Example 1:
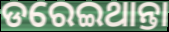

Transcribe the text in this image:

ଡରେଇଥାନ୍ତା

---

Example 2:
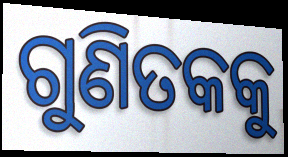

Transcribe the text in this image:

ଗୁଣିତକକୁ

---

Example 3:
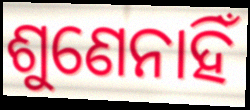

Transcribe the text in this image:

ଶୁଣେନାହିଁ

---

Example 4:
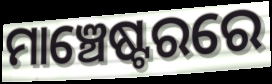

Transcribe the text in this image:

ମାଞ୍ଚେଷ୍ଟରରେ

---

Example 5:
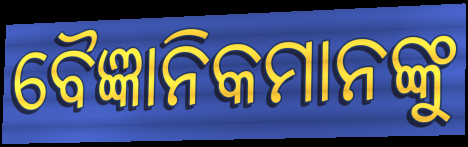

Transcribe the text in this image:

ବୈଜ୍ଞାନିକମାନଙ୍କୁ